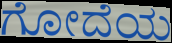
ಗೋದೆಯ